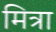
मित्रा